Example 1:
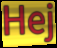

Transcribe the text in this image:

Hej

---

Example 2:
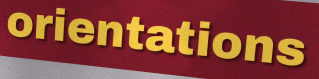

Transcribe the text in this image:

orientations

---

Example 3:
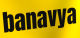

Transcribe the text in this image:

banavya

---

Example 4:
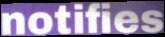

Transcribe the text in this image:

notifies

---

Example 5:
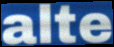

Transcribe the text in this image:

alte